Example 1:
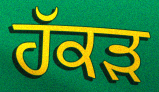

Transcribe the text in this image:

ਹੱਕੜ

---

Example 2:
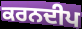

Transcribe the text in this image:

ਕਰਨਦੀਪ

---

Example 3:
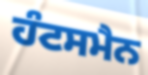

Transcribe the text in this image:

ਹੰਟਸਮੈਨ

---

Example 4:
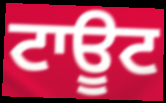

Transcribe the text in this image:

ਟਾਊਟ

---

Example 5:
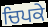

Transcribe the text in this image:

ਚਿਪਕੇ